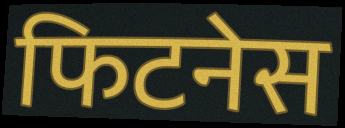
फिटनेस